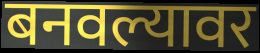
बनवल्यावर